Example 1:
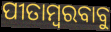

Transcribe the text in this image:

ପୀତାମ୍ବରବାବୁ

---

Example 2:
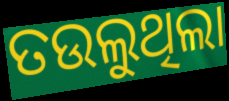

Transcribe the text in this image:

ତଉଲୁଥିଲା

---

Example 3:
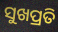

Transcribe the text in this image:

ସୁଖପ୍ରତି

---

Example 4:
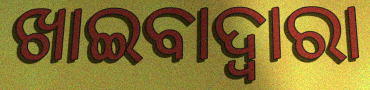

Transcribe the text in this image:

ଖାଇବାଦ୍ୱାରା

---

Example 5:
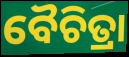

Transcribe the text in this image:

ବୈଚିତ୍ରା